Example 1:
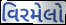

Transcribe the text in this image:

વિરમેલો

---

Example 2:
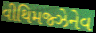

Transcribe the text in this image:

વીથિમજ્ઝેનેવ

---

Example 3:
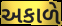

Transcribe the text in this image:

અકાળે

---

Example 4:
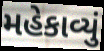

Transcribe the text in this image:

મહેકાવ્યું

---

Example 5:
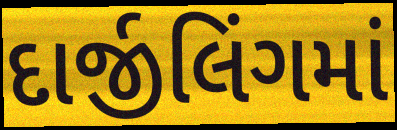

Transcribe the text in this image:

દાર્જીલિંગમાં